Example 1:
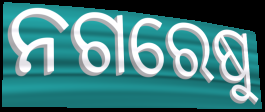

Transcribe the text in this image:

ନଗରେଷୁ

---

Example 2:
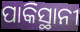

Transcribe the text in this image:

ପାକିସ୍ଥାନୀ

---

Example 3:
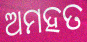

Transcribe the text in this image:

ଅମହତ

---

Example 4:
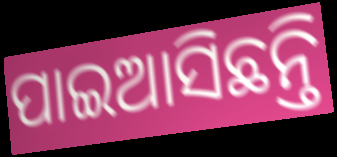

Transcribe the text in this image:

ପାଇଆସିଛନ୍ତି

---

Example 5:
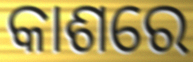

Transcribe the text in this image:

କାଶରେ